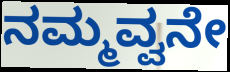
ನಮ್ಮವ್ವನೇ